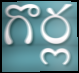
గొర్ల